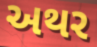
અથર